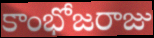
కాంభోజరాజు